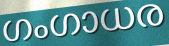
ഗംഗാധര